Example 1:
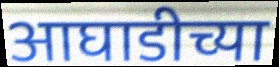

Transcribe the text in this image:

आघाडीच्‍या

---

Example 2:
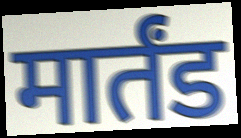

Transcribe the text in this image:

मार्तंड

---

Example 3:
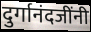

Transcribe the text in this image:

दुर्गानंदजींनी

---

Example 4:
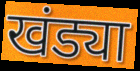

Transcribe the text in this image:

खंड्या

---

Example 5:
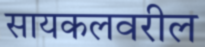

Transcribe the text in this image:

सायकलवरील